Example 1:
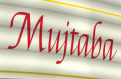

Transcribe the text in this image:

Mujtaba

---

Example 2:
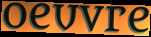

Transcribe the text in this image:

oeuvre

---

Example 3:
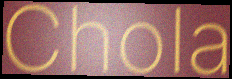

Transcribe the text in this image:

Chola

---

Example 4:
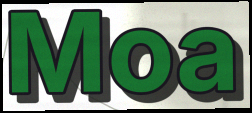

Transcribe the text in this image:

Moa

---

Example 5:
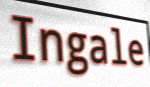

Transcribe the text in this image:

Ingale